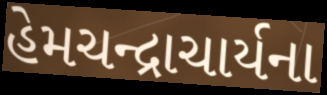
હેમચન્દ્રાચાર્યના